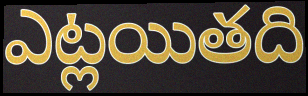
ఎట్లయితది